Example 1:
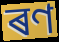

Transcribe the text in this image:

ৰণ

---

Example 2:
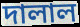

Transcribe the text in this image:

দালাল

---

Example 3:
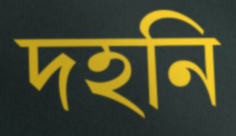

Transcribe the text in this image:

দহনি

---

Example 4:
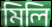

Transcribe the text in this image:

মিলি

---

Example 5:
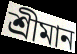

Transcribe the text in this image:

শ্ৰীমান